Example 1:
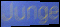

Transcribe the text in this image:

Junge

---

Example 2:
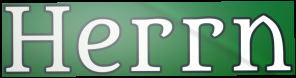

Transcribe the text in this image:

Herrn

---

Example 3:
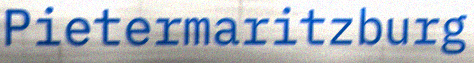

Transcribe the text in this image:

Pietermaritzburg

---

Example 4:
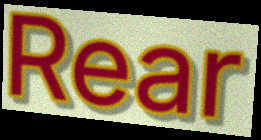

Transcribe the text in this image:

Rear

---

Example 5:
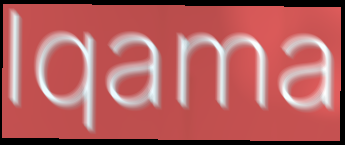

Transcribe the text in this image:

Iqama